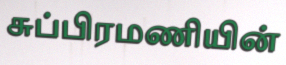
சுப்பிரமணியின்